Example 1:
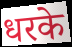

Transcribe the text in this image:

धरके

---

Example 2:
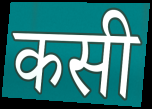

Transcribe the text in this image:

कसी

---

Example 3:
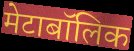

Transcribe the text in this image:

मेटाबॉलिक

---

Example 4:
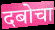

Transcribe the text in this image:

दबोचा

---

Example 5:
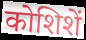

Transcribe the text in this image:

कोशिशें